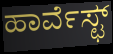
ಹಾರ್ವೆಸ್ಟ್